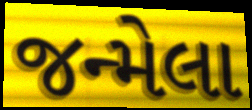
જન્મેલા